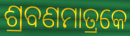
ଶ୍ରବଣମାତ୍ରକେ